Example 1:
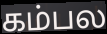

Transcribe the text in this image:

கம்பல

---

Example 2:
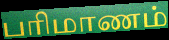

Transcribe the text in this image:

பரிமாணம்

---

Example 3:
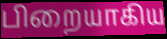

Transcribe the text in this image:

பிறையாகிய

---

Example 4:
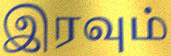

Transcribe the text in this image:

இரவும்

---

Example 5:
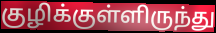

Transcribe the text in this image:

குழிக்குள்ளிருந்து